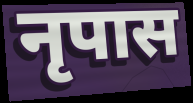
नृपास